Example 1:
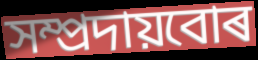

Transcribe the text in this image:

সম্প্ৰদায়বোৰ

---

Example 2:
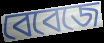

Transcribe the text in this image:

বেবেজে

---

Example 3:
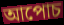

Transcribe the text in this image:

আপোচ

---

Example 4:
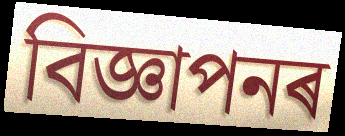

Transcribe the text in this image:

বিজ্ঞাপনৰ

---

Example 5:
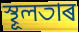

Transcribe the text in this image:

স্থূলতাৰ